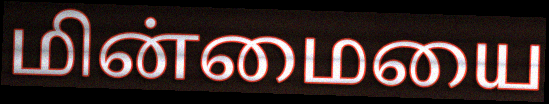
மின்மையை